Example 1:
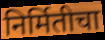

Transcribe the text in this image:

निर्मितीचा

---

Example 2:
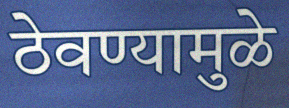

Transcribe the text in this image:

ठेवण्यामुळे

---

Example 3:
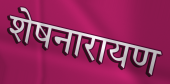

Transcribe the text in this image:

शेषनारायण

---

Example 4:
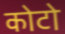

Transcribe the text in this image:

कोटो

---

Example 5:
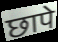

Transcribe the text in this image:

छापे